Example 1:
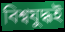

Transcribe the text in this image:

বিশ্বযুদ্ধই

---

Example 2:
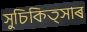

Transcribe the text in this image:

সুচিকিত্সাৰ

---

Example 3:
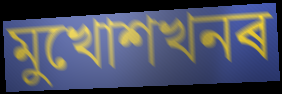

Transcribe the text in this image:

মুখোশখনৰ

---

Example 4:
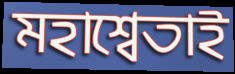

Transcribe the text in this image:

মহাশ্বেতাই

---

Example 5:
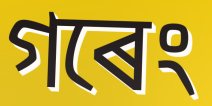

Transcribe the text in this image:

গৰেং